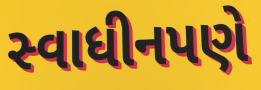
સ્વાધીનપણે